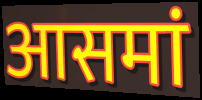
आसमां